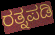
ರತ್ನಪಡಿ